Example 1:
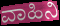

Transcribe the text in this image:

ವಾಹಿನಿ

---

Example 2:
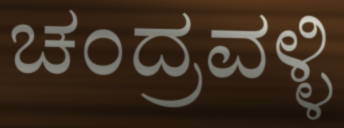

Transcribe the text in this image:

ಚಂದ್ರವಳ್ಳಿ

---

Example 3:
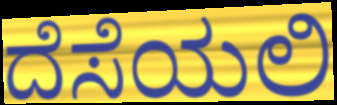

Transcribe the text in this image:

ದೆಸೆಯಲಿ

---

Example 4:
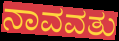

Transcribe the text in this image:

ನಾವವತು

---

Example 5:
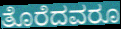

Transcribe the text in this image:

ತೊರೆದವರೂ